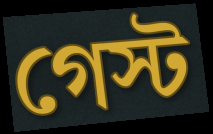
গেস্ট